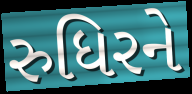
રુધિરને